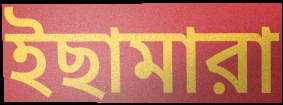
ইছামারা